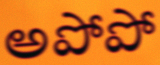
అపోపో